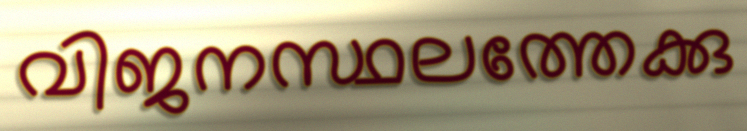
വിജനസ്ഥലത്തേക്കു